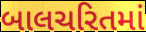
બાલચરિતમાં